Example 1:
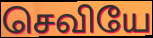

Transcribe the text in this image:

செவியே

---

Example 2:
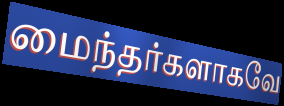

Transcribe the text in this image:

மைந்தர்களாகவே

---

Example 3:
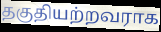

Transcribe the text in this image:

தகுதியற்றவராக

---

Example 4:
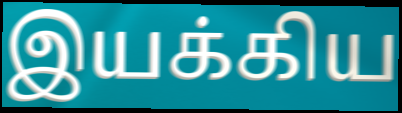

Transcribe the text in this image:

இயக்கிய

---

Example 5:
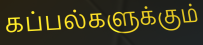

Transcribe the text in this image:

கப்பல்களுக்கும்